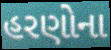
હરણોના